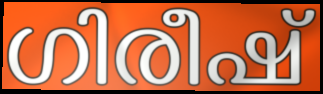
ഗിരീഷ്